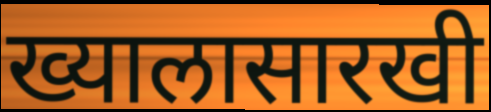
ख्यालासारखी